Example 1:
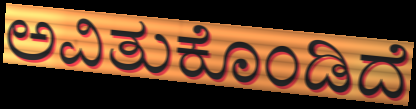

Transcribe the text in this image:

ಅವಿತುಕೊಂಡಿದೆ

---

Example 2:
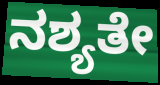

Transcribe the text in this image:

ನಶ್ಯತೇ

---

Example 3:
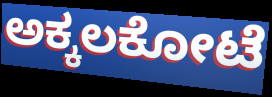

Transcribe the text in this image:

ಅಕ್ಕಲಕೋಟೆ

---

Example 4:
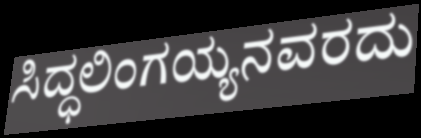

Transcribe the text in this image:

ಸಿದ್ಧಲಿಂಗಯ್ಯನವರದು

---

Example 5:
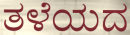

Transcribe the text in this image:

ತಳೆಯದ